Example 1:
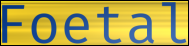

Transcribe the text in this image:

Foetal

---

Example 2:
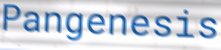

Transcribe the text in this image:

Pangenesis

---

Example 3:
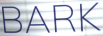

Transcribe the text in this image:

BARK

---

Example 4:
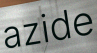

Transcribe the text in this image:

azide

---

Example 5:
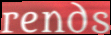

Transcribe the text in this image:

rends